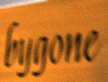
bygone